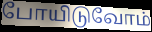
போயிடுவோம்